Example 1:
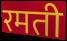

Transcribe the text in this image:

रमती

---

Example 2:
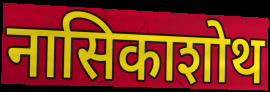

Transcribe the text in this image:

नासिकाशोथ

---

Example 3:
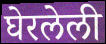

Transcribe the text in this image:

घेरलेली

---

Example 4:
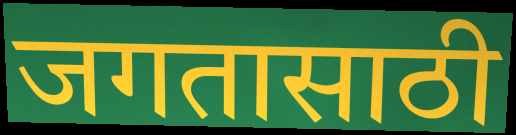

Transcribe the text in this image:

जगतासाठी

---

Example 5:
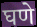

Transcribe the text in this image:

घणे